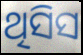
ଥିସିସ